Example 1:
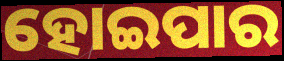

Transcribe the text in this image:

ହୋଇପାର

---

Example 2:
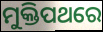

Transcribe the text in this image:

ମୁକ୍ତିପଥରେ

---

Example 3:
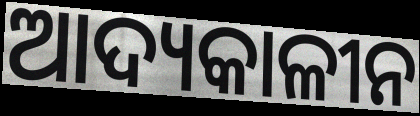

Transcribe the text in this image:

ଆଦ୍ୟକାଳୀନ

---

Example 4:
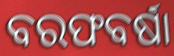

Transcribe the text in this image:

ବରଫବର୍ଷା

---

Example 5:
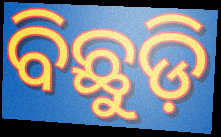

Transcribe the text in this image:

ବିଛୁଡ଼ି